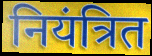
नियंत्रित